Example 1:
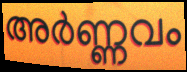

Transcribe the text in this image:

അർണ്ണവം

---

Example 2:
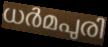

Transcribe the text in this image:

ധർമപുരി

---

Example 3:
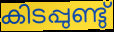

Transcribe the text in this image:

കിടപ്പുണ്ടു്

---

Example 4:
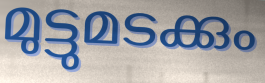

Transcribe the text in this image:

മുട്ടുമടക്കും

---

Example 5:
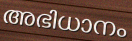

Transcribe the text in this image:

അഭിധാനം